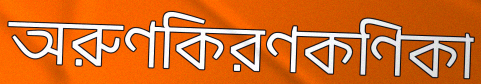
অরুণকিরণকণিকা